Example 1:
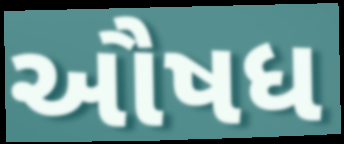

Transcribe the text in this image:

ઔષધ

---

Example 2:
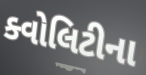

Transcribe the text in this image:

ક્વોલિટીના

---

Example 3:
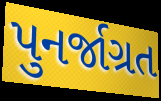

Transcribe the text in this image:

પુનર્જાગ્રત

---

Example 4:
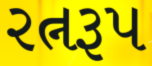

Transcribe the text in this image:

રત્નરૂપ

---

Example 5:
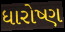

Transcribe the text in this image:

ધારોષ્ણ